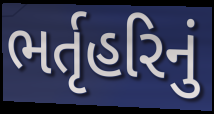
ભર્તૃહરિનું